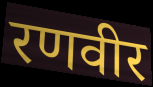
रणवीर